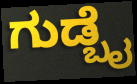
ಗುಡ್ಬೈ